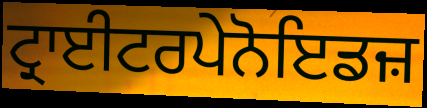
ਟ੍ਰਾਈਟਰਪੇਨੋਇਡਜ਼